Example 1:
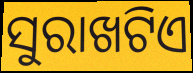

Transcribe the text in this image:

ସୁରାଖଟିଏ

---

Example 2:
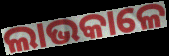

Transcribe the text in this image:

ଲାଭକାଳେ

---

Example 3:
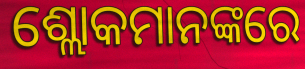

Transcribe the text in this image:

ଶ୍ଲୋକମାନଙ୍କରେ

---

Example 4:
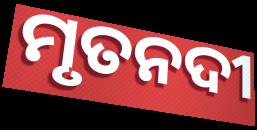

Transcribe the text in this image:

ମୃତନଦୀ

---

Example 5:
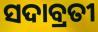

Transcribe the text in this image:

ସଦାବ୍ରତୀ